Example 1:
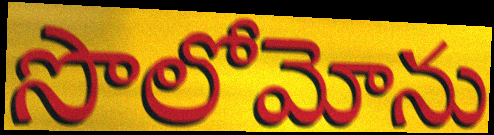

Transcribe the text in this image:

సొలోమోను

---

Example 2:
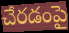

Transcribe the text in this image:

చేరడంపై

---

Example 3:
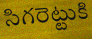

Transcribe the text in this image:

సిగరెట్టుకి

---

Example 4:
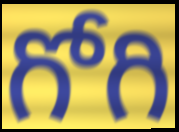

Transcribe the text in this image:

గోగి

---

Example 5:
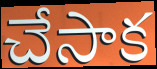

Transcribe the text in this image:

చేసాక